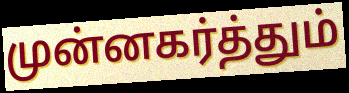
முன்னகர்த்தும்